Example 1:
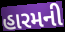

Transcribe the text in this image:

હારમની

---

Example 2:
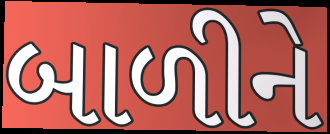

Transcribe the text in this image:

બાળીને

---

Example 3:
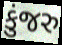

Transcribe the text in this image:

કુંજરુ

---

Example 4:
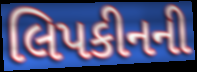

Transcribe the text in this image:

લિપકીનની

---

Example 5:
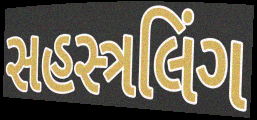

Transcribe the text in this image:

સહસ્ત્રલિંગ